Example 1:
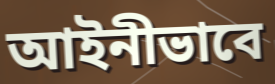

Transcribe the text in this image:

আইনীভাবে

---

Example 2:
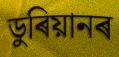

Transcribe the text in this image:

ডুৰিয়ানৰ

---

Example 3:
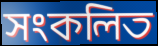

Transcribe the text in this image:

সংকলিত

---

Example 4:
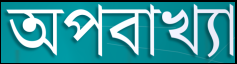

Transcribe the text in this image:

অপবাখ্যা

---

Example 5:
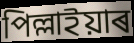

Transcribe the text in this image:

পিল্লাইয়াৰ